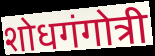
शोधगंगोत्री